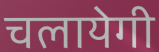
चलायेगी